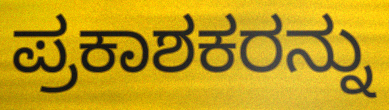
ಪ್ರಕಾಶಕರನ್ನು